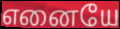
எனையே